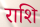
राशि